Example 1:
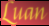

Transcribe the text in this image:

Luan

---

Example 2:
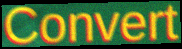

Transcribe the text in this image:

Convert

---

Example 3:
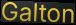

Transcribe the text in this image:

Galton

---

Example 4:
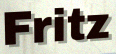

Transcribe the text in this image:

Fritz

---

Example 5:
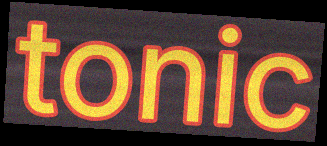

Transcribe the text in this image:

tonic